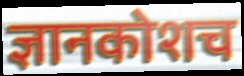
ज्ञानकोशच